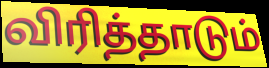
விரித்தாடும்